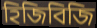
হিজিবিজি